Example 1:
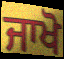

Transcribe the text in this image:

ਜਾਖੋ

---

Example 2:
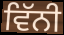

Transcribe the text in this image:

ਵਿੱਨੀ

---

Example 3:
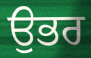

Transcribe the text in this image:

ਉਭਰ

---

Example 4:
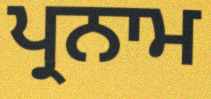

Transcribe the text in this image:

ਪ੍ਰਨਾਮ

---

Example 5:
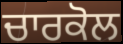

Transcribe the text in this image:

ਚਾਰਕੋਲ